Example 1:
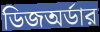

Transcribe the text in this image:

ডিজঅর্ডার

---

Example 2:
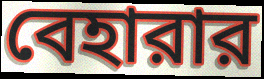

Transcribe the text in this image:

বেহারার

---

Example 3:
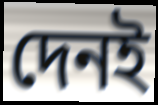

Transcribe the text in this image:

দেনই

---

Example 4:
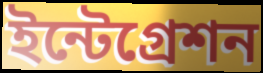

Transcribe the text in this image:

ইন্টেগ্রেশন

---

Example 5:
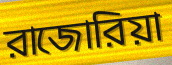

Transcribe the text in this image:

রাজোরিয়া